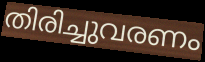
തിരിച്ചുവരണം